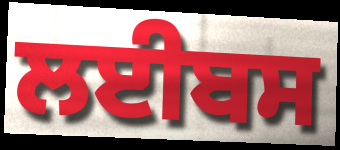
ਲਈਬਸ